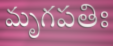
మృగపతిః